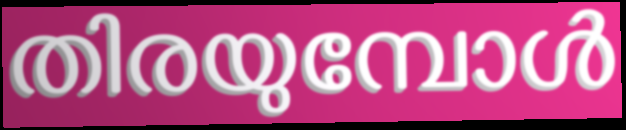
തിരയുമ്പോൾ